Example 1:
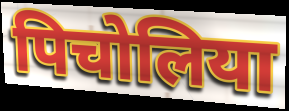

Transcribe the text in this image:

पिचोलिया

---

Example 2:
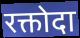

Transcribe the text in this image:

रक्तोदा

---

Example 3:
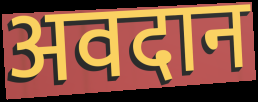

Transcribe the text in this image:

अवदान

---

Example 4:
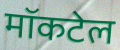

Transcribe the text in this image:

मॉकटेल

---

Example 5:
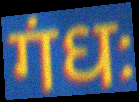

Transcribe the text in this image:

गंधः